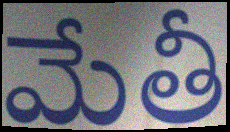
మేతీ